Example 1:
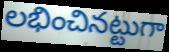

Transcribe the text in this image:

లభించినట్టుగా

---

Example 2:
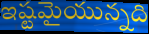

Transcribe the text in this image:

ఇష్టమైయున్నది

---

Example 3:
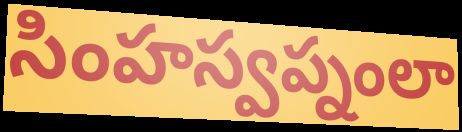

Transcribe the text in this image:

సింహస్వప్నంలా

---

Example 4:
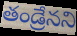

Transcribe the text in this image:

తండ్రేనని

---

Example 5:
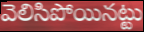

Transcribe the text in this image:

వెలిసిపోయినట్టు